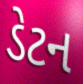
ડેટન